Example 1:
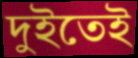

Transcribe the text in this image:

দুইতেই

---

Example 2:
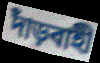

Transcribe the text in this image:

দাঁড়বাহী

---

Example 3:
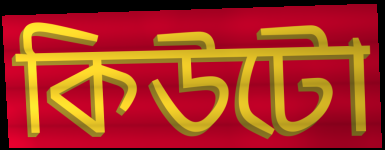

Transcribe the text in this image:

কিউটো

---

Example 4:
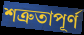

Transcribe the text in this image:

শত্রুতাপূর্ণ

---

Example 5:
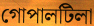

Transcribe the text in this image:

গোপালটিলা